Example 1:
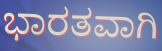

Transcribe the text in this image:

ಭಾರತವಾಗಿ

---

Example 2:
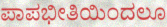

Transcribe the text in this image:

ಪಾಪಭೀತಿಯಿಂದಲೂ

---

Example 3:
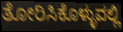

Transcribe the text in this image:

ತೋರಿಸಿಕೊಳ್ಳುವಲ್ಲಿ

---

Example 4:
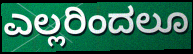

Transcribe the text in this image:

ಎಲ್ಲರಿಂದಲೂ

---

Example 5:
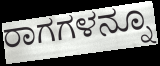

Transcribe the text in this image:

ರಾಗಗಳನ್ನೂ